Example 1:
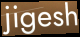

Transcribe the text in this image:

jigesh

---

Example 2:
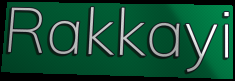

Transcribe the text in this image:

Rakkayi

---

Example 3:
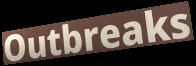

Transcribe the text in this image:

Outbreaks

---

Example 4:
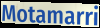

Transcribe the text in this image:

Motamarri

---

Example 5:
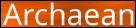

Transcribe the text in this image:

Archaean